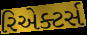
રિએક્ટર્સ